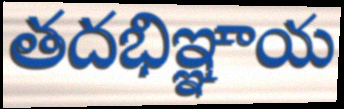
తదభిఞ్ఞాయ